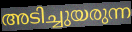
അടിച്ചുയരുന്ന